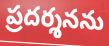
ప్రదర్శనను